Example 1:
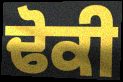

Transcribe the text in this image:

ਢੋਕੀ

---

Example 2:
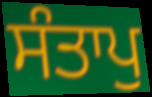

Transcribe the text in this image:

ਸੰਤਾਪੁ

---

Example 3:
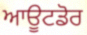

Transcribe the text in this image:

ਆਊਟਡੋਰ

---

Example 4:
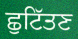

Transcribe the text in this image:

ਛੁਟਿੱਤਣ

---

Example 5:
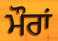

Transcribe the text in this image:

ਮੌਰਾਂ